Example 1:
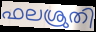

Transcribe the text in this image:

ഫലശ്രുതി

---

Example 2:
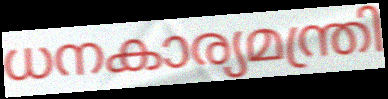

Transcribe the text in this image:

ധനകാര്യമന്ത്രി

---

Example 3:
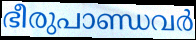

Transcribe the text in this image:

ഭീരുപാണ്ഡവർ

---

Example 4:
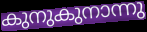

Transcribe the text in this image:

കുനുകുനാന്നു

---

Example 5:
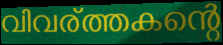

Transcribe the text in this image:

വിവര്ത്തകന്റെ